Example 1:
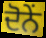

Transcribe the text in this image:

ਦੋਨੇਂ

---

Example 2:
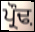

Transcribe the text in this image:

ਪ੍ਰੌਢ਼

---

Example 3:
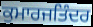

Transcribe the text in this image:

ਕੁਮਾਰਜਤਿੰਦਰ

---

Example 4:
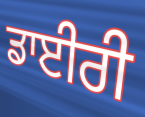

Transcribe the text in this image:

ਡਾਈਰੀ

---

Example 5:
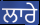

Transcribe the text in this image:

ਲਾਰੇ